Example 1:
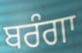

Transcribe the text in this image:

ਬਰੰਗਾ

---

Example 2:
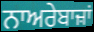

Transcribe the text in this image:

ਨਾਅਰੇਬਾਜ਼ਾਂ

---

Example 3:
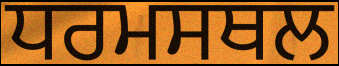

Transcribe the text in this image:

ਧਰਮਸਥਲ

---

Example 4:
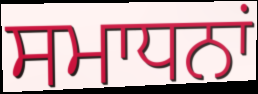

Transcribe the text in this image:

ਸਮਾਧਨਾਂ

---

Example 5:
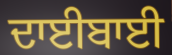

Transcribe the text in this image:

ਦਾਈਬਾਈ